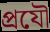
প্রযৌ